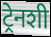
ट्रेनशी